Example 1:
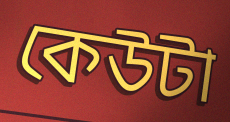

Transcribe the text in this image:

কেউটা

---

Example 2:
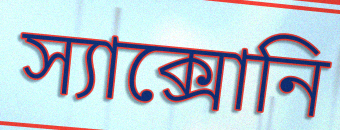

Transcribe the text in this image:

স্যাক্সোনি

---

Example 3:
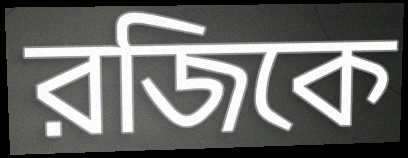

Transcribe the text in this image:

রজিকে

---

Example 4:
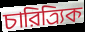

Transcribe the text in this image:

চারিত্র্যিক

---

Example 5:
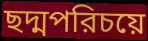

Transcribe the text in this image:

ছদ্মপরিচয়ে